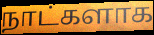
நாட்களாக